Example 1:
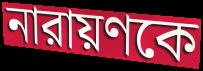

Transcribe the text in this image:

নারায়ণকে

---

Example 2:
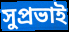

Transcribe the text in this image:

সুপ্রভাই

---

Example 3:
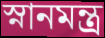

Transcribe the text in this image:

স্নানমন্ত্র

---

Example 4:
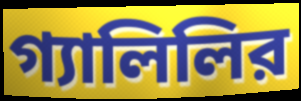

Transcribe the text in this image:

গ্যালিলির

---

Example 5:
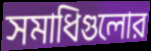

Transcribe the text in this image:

সমাধিগুলোর